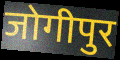
जोगीपुर